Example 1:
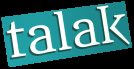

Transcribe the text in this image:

talak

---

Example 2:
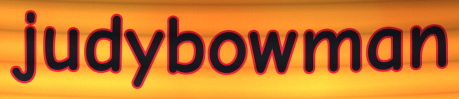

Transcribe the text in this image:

judybowman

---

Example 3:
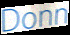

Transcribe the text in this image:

Donn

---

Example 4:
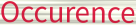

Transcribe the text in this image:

Occurence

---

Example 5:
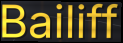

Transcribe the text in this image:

Bailiff